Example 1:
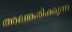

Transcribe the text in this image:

അലങ്കരിക്കുന്ന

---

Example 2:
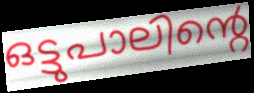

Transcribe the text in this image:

ഒട്ടുപാലിന്റെ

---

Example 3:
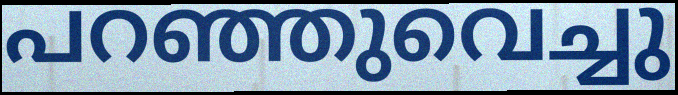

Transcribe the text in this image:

പറഞ്ഞുവെച്ചു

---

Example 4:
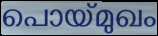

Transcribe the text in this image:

പൊയ്മുഖം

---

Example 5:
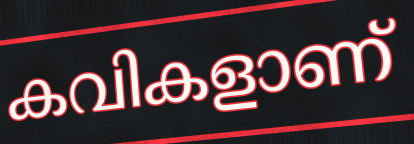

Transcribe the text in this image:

കവികളാണ്